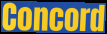
Concord